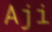
Aji